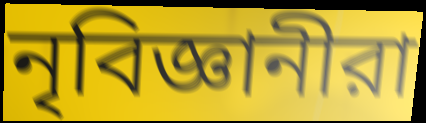
নৃবিজ্ঞানীরা